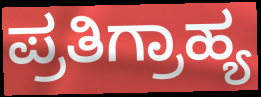
ಪ್ರತಿಗ್ರಾಹ್ಯ